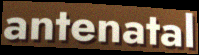
antenatal